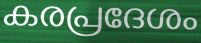
കരപ്രദേശം